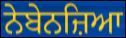
ਨੇਬੇਨਜ਼ਿਆ